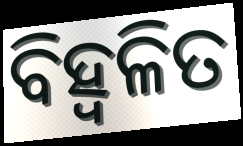
ବିହ୍ୱଳିତ